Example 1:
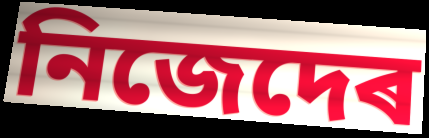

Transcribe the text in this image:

নিজেদেৰ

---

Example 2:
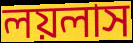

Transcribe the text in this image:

লয়লাস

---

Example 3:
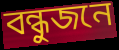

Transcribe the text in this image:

বন্ধুজনে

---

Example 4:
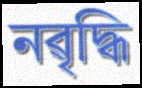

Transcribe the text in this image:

নৱৃদ্ধি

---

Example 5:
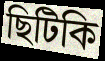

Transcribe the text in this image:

ছিটিকি